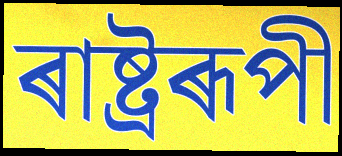
ৰাষ্ট্ৰৰূপী